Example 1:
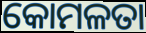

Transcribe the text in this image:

କୋମଳତା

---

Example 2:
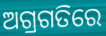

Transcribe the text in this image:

ଅଗ୍ରଗତିରେ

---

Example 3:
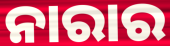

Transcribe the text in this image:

ନାରାର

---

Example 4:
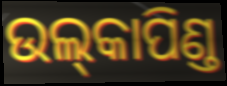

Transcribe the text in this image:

ଉଲ୍‌କାପିଣ୍ଡ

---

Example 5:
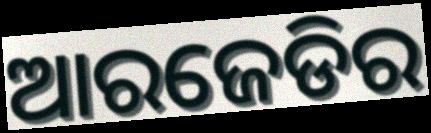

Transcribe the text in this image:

ଆରଜେଡିର